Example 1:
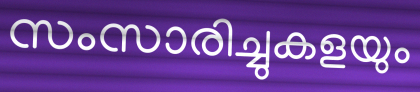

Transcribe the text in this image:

സംസാരിച്ചുകളയും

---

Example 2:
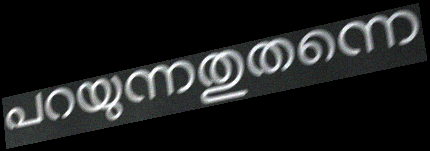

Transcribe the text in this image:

പറയുന്നതുതന്നെ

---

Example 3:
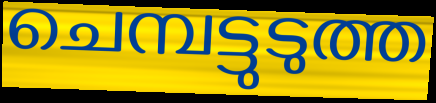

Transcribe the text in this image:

ചെമ്പട്ടുടുത്ത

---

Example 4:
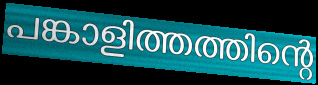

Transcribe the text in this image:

പങ്കാളിത്തത്തിന്റെ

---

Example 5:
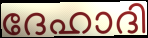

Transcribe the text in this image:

ദേഹാദി